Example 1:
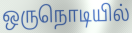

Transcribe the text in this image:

ஒருநொடியில்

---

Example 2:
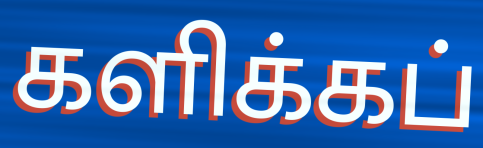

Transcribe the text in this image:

களிக்கப்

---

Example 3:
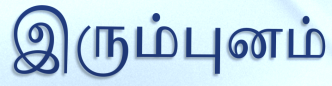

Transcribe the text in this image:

இரும்புனம்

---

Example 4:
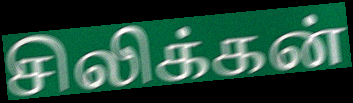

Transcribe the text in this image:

சிலிக்கன்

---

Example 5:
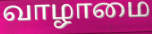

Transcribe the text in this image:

வாழாமை